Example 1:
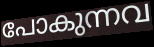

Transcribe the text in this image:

പോകുന്നവ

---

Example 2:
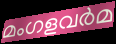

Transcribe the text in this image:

മംഗളവർമ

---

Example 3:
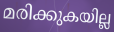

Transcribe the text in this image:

മരിക്കുകയില്ല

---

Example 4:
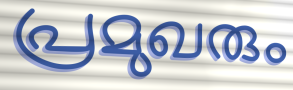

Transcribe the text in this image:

പ്രമുഖരും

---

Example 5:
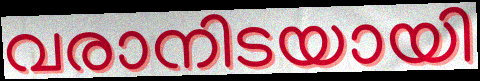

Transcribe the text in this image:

വരാനിടയായി